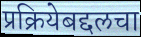
प्रक्रियेबद्दलचा